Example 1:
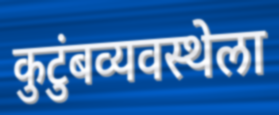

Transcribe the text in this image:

कुटुंबव्यवस्थेला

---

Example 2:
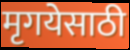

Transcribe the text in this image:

मृगयेसाठी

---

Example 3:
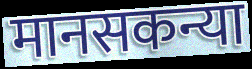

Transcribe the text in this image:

मानसकन्या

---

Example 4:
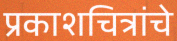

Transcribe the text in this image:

प्रकाशचित्रांचे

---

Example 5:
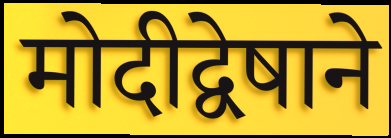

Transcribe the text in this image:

मोदीद्वेषाने